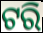
ଟରି